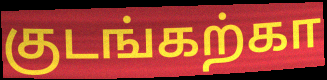
குடங்கற்கா